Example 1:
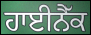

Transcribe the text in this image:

ਹਾਈਨੈੱਕ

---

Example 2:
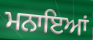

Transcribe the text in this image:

ਮਨਾਇਆਂ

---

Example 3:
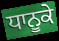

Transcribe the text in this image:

ਧਾਨੂਕੇ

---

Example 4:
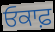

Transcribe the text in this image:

ਓਕਾਫ਼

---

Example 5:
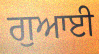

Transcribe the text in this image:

ਗੁਆਈ